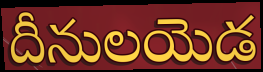
దీనులయెడ